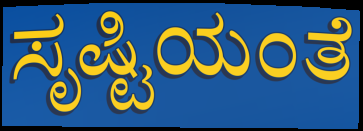
ಸೃಷ್ಟಿಯಂತೆ